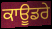
ਕਾਊਡਰੇ